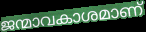
ജന്മാവകാശമാണ്